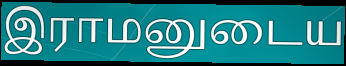
இராமனுடைய